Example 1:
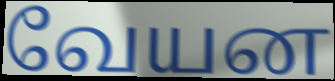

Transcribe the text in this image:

வேயன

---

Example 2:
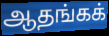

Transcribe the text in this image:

ஆதங்கக்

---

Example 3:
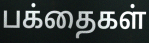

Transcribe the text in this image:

பக்தைகள்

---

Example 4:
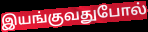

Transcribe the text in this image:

இயங்குவதுபோல்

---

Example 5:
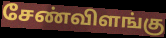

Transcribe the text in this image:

சேண்விளங்கு